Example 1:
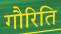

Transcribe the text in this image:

गौरिति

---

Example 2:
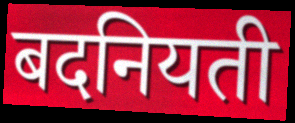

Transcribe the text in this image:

बदनियती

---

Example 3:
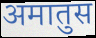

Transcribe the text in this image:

अमातुस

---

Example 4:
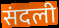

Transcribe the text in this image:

संदली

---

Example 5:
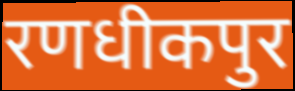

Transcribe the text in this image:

रणधीकपुर